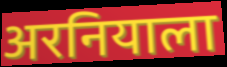
अरनियाला